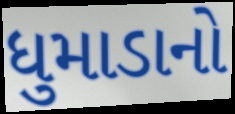
ધુમાડાનો